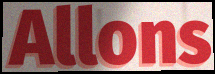
Allons